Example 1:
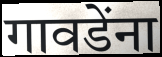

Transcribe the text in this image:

गावडेंना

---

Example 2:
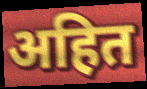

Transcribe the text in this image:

अहित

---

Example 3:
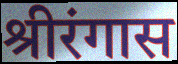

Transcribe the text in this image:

श्रीरंगास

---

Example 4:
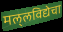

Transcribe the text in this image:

मल्लविद्येचा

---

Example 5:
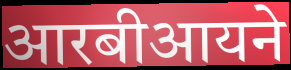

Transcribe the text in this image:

आरबीआयने